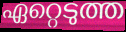
ഏറ്റെടുത്ത